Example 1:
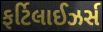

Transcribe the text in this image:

ફર્ટિલાઈઝર્સ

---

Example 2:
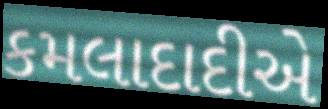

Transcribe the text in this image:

કમલાદાદીએ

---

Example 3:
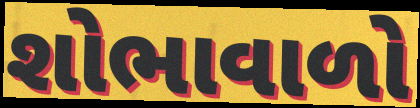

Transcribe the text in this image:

શોભાવાળો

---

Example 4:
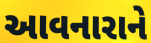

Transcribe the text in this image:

આવનારાને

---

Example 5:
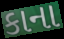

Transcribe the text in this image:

કાના